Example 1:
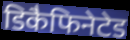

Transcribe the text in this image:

डिकैफिनेटेड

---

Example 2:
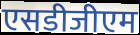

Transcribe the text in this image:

एसडीजीएम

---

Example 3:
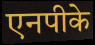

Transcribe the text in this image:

एनपीके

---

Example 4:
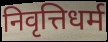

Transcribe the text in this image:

निवृत्तिधर्म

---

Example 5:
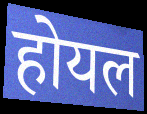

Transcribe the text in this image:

होयल